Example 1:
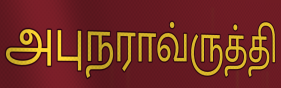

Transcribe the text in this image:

அபுநராவ்ருத்தி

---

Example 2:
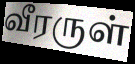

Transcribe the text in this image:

வீரருள்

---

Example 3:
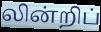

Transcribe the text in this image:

லின்றிப்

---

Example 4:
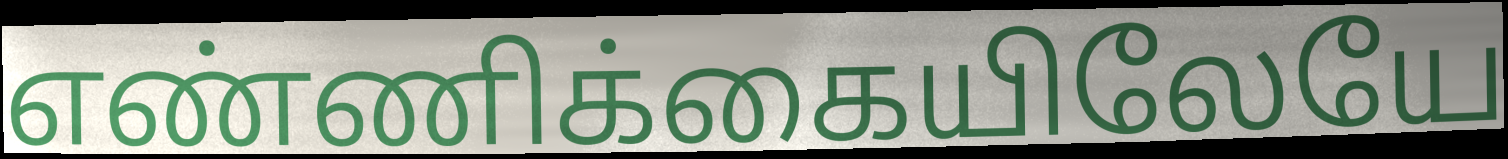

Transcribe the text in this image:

எண்ணிக்கையிலேயே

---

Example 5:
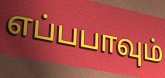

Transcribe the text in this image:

எப்பபாவும்